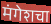
मंगेशचा